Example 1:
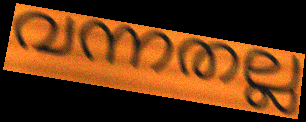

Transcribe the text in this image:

വന്നതല്ല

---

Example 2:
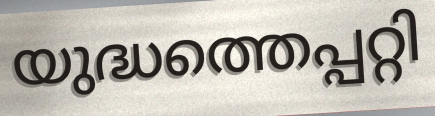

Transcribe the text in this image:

യുദ്ധത്തെപ്പറ്റി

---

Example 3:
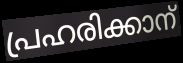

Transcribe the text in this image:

പ്രഹരിക്കാന്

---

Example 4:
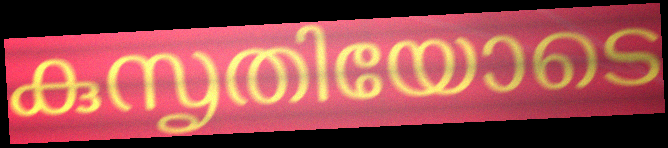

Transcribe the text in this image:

കുസൃതിയോടെ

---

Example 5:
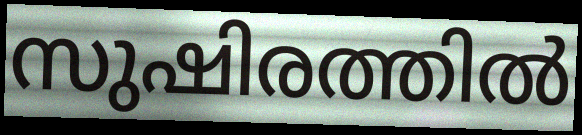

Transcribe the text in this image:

സുഷിരത്തിൽ